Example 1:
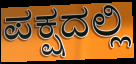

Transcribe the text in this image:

ಪಕ್ಷದಲ್ಲಿ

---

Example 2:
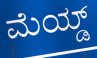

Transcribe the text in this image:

ಮೆಯ್ಡ್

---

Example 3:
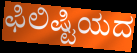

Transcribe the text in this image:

ಫಿಲಿಷ್ಟಿಯದ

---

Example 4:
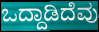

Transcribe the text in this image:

ಒದ್ದಾಡಿದೆವು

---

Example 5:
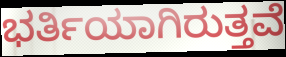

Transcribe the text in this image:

ಭರ್ತಿಯಾಗಿರುತ್ತವೆ